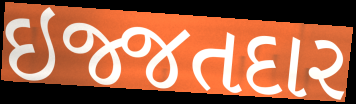
ઇજ્જતદાર